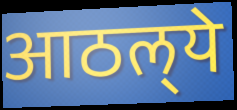
आठल्ये